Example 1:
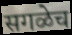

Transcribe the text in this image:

सगळेच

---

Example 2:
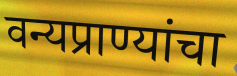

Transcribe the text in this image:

वन्यप्राण्यांचा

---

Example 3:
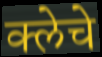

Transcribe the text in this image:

क्लेचे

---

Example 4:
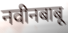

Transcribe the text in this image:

नवीनबाबू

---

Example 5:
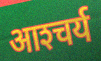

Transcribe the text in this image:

आश्‍चर्य